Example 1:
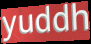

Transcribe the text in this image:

yuddh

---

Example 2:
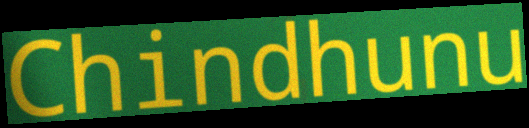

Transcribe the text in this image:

Chindhunu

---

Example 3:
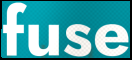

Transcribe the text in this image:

fuse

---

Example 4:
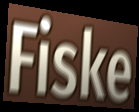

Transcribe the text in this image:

Fiske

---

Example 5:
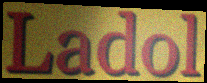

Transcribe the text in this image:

Ladol